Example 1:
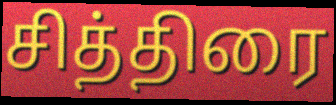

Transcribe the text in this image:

சித்திரை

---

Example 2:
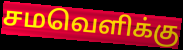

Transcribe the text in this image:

சமவெளிக்கு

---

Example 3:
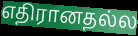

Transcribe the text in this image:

எதிரானதல்ல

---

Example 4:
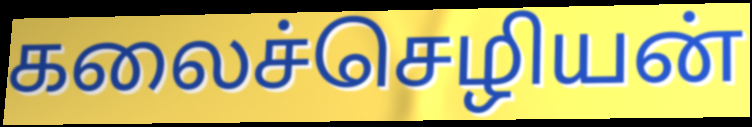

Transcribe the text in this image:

கலைச்செழியன்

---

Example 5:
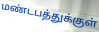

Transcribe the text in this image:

மண்டபத்துக்குள்